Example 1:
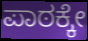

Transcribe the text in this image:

ಪಾಠಕ್ಕೇ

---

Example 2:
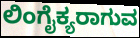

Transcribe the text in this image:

ಲಿಂಗೈಕ್ಯರಾಗುವ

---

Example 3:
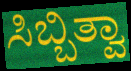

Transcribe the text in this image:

ಸಿಬ್ಬಿತ್ವಾ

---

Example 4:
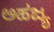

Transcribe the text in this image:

ಅಹಜ್ಯ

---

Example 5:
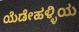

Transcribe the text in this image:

ಯೆಡೇಹಳ್ಳಿಯ